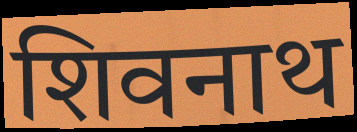
शिवनाथ